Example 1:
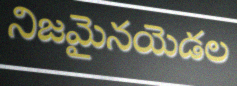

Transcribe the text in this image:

నిజమైనయెడల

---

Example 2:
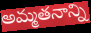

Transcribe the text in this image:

అమ్మతనాన్ని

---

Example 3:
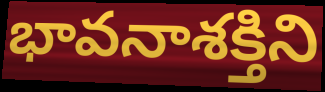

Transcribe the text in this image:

భావనాశక్తిని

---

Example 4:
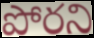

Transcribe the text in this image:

పోరని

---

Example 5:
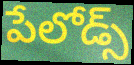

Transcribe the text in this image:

పేలోడ్స్